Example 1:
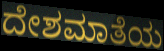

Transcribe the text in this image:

ದೇಶಮಾತೆಯ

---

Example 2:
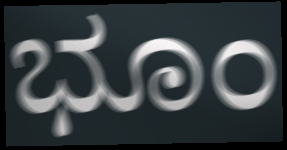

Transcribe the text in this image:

ಭೂಂ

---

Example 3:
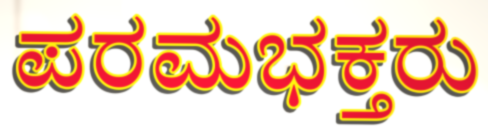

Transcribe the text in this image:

ಪರಮಭಕ್ತರು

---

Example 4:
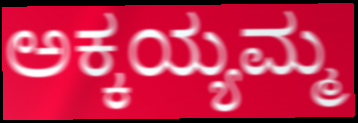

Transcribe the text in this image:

ಅಕ್ಕಯ್ಯಮ್ಮ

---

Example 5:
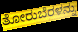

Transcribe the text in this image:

ತೋರುಬೆರಳನ್ನು